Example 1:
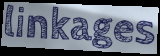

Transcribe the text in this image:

linkages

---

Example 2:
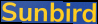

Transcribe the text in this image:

Sunbird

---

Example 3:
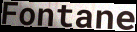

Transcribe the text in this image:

Fontane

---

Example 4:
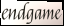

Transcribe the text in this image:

endgame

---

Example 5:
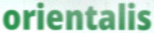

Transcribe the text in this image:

orientalis